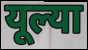
यूल्या